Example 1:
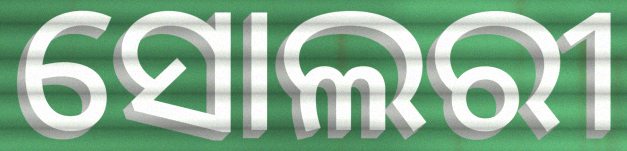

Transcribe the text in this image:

ସୋଲରୀ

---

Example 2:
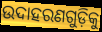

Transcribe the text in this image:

ଉଦାହରଣଗୁଡ଼ିକୁ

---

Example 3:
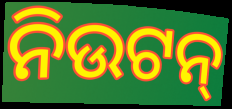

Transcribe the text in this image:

ନିଉଟନ୍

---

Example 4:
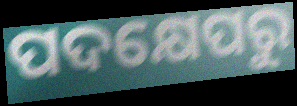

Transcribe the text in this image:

ପଦକ୍ଷେପରୁ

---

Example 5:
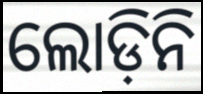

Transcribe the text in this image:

ଲୋଡ଼ିନି